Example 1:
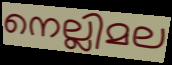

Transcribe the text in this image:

നെല്ലിമല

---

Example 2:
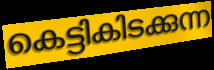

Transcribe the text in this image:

കെട്ടികിടക്കുന്ന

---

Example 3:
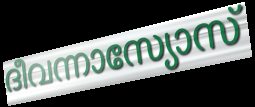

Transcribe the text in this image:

ദീവന്നാസ്യോസ്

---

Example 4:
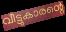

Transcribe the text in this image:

വീട്ടുകാരന്റെ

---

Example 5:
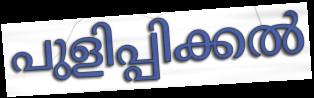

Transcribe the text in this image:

പുളിപ്പിക്കൽ